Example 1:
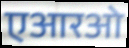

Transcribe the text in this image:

एआरओ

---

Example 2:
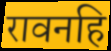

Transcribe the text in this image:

रावनहि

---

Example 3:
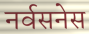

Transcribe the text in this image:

नर्वसनेस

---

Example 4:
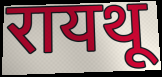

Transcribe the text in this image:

रायथू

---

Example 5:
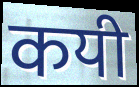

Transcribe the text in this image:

कयी